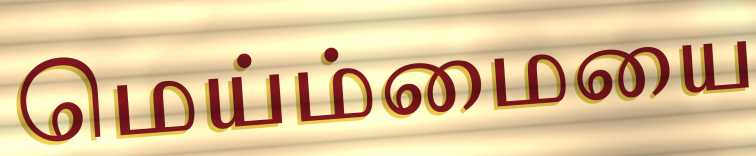
மெய்ம்மையை